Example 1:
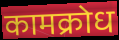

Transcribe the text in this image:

कामक्रोध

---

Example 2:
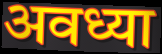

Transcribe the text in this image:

अवध्या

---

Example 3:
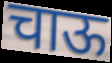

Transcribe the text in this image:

चाऊ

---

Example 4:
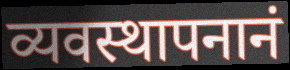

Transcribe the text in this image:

व्यवस्थापनानं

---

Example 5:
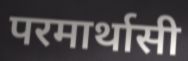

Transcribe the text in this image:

परमार्थासी